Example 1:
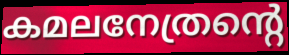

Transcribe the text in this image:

കമലനേത്രന്റെ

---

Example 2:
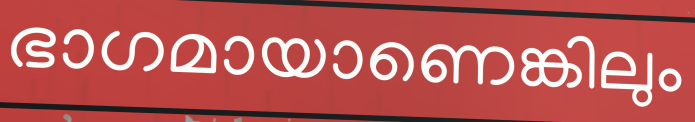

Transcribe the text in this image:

ഭാഗമായാണെങ്കിലും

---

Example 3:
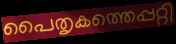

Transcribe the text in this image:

പൈതൃകത്തെപ്പറ്റി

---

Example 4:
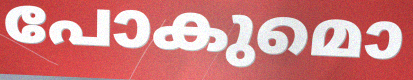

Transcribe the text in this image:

പോകുമൊ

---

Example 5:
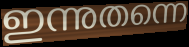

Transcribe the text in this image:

ഇന്നുതന്നെ